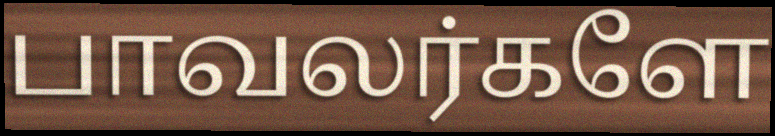
பாவலர்களே